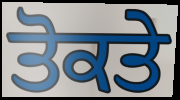
ਤੋਕਤੇ